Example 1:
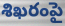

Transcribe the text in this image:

శిఖరంపై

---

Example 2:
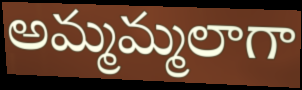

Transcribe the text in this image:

అమ్మమ్మలాగా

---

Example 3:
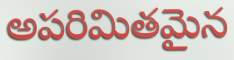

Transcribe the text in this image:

అపరిమితమైన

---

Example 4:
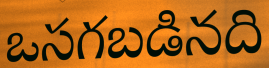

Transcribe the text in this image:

ఒసగబడినది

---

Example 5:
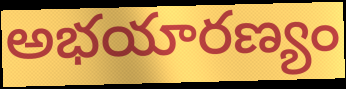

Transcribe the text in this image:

అభయారణ్యం